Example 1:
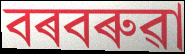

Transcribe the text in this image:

বৰবৰুৱা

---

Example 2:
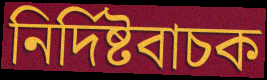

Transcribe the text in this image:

নিৰ্দিষ্টবাচক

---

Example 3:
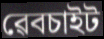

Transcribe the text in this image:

ৱেবচাইট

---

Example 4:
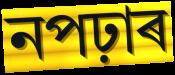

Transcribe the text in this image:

নপঢ়াৰ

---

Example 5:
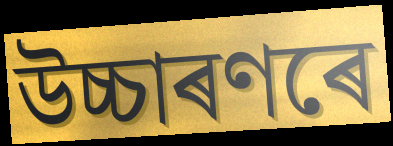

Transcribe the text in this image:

উচ্চাৰণৰে